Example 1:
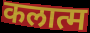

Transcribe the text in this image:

कलात्म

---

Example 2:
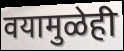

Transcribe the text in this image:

वयामुळेही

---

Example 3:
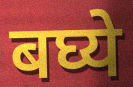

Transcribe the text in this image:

बघ्ये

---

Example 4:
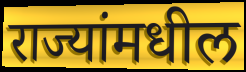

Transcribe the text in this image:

राज्यांमधील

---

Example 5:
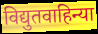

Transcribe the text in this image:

विद्युतवाहिन्या